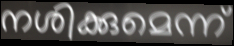
നശിക്കുമെന്ന്